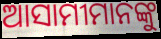
ଆସାମୀମାନଙ୍କୁ